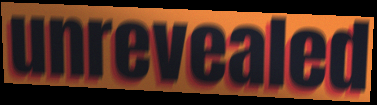
unrevealed